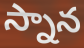
స్నాన